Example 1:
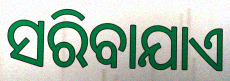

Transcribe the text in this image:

ସରିବାଯାଏ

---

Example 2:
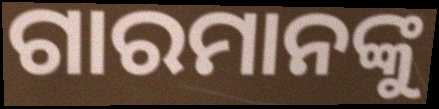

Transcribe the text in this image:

ଗାରମାନଙ୍କୁ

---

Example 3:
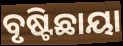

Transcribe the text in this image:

ବୃଷ୍ଟିଛାୟା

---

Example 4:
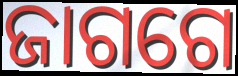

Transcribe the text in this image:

ଜାଗଗେ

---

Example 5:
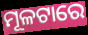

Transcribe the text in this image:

ମୂଳଟାରେ